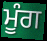
ਮੂੰਗ